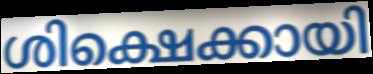
ശിക്ഷെക്കായി